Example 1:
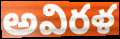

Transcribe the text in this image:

అవిరళ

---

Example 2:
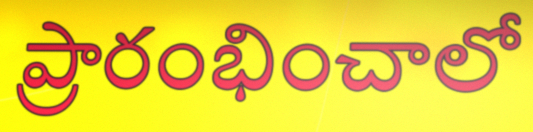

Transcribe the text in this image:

ప్రారంభించాలో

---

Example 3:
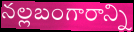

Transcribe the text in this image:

నల్లబంగారాన్ని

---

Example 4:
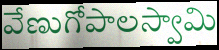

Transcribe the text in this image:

వేణుగోపాలస్వామి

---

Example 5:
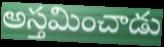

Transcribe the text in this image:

అస్తమించాడు